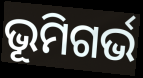
ଭୂମିଗର୍ଭ